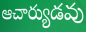
ఆచార్యుడవు